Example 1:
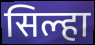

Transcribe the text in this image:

सिल्हा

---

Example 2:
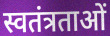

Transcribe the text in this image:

स्वतंत्रताओं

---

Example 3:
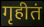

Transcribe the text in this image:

गृहीतं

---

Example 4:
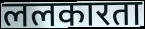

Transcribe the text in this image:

ललकारता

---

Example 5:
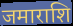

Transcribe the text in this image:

जमाराशि